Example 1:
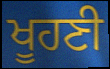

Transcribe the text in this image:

ਖੂਹਣੀ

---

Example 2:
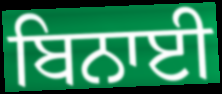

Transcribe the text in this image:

ਬਿਨਾਈ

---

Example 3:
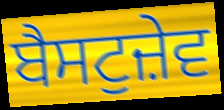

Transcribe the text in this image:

ਬੈਸਟੁਜ਼ੇਵ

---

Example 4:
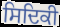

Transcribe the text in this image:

ਸਿਦਿਕੀ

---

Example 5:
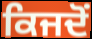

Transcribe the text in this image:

ਕਿਜਦੋਂ